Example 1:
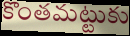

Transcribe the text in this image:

కొంతమట్టుకు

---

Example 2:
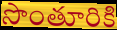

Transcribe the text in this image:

సొంతూరికి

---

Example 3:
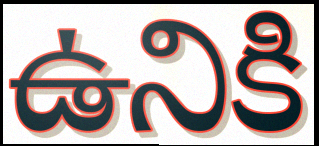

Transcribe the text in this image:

ఉనికి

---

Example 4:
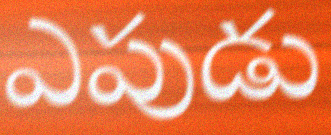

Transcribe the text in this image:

ఎపుడు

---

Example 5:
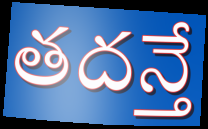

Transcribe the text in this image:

తదన్తే